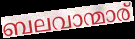
ബലവാന്മാര്